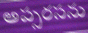
అప్సరసను